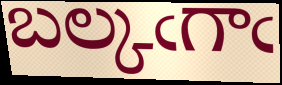
బల్కఁగాఁ